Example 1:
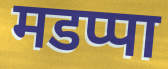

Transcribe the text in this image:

मडप्पा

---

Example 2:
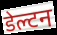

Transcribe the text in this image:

डेल्टन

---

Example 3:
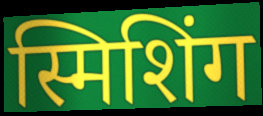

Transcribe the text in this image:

स्मिशिंग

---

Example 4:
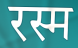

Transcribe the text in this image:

रस्म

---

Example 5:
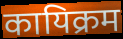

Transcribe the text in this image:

कायिक्रम